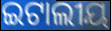
ଇଟାଲୀୟ